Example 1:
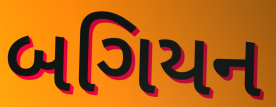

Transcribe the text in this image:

બગિયન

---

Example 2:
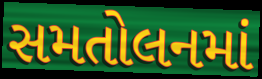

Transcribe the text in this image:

સમતોલનમાં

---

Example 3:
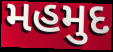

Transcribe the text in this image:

મહમુદ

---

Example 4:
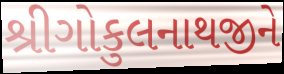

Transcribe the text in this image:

શ્રીગોકુલનાથજીને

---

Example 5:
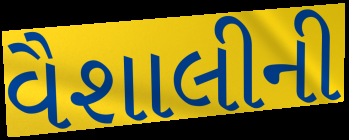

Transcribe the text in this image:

વૈશાલીની